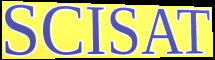
SCISAT